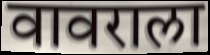
वावराला